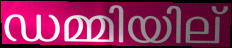
ഡമ്മിയില്